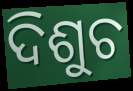
ଦିଶୁଚ